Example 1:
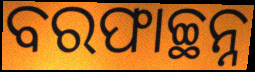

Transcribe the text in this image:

ବରଫାଚ୍ଛନ୍ନ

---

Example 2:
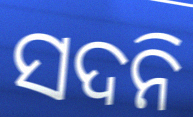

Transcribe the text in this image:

ସଦନି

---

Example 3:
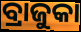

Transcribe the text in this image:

ବ୍ରାଜୁକା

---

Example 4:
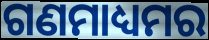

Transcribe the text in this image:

ଗଣମାଧ୍ୟମର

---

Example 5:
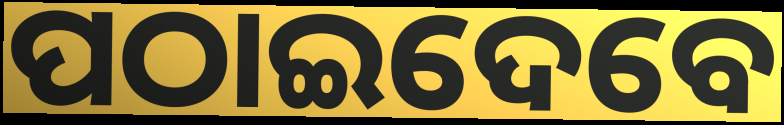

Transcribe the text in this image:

ପଠାଇଦେବେ